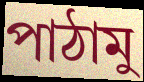
পাঠামু